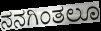
ನನಗಿಂತಲೂ